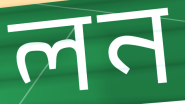
লন